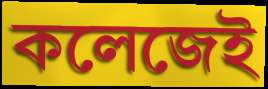
কলেজেই